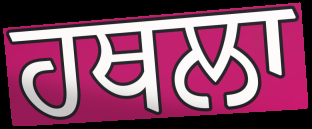
ਹਥਲਾ